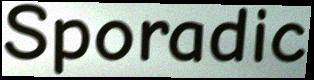
Sporadic